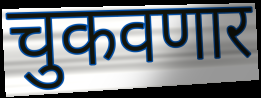
चुकवणार